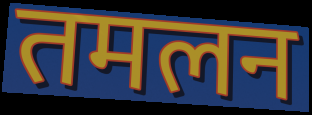
तमलन